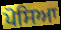
ਪੋਸਿਆ